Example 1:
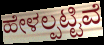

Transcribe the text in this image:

ಹೇಳಲ್ಪಟ್ಟಿವೆ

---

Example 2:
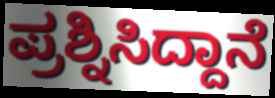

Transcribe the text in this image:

ಪ್ರಶ್ನಿಸಿದ್ದಾನೆ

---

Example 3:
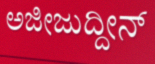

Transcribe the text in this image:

ಅಜೀಜುದ್ದೀನ್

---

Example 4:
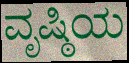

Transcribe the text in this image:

ವೃಷ್ಠಿಯ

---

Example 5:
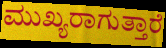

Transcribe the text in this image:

ಮುಖ್ಯರಾಗುತ್ತಾರೆ